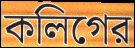
কলিগের